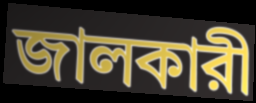
জালকারী